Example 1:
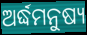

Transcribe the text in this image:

ଅର୍ଦ୍ଧମନୁଷ୍ୟ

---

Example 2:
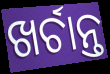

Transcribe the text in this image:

ଖର୍ଚାନ୍ତ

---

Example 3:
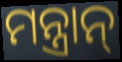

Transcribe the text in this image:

ମନ୍ତ୍ରାନ୍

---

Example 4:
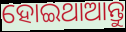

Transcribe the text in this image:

ହୋଇଥାଆନ୍ତୁ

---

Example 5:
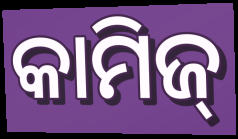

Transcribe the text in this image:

କାମିଜ୍